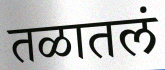
तळातलं